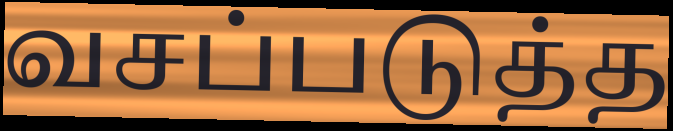
வசப்படுத்த